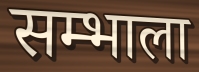
सम्भाला